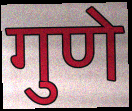
गुणे